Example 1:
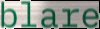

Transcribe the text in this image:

blare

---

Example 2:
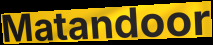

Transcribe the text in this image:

Matandoor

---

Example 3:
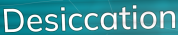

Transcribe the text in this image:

Desiccation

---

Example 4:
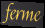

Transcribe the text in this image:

ferme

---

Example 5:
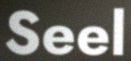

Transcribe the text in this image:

Seel